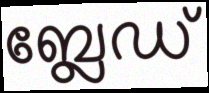
ബ്ലേഡ്